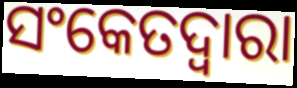
ସଂକେତଦ୍ଵାରା